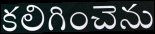
కలిగించెను